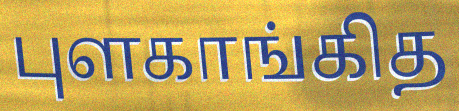
புளகாங்கித